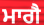
ਮਾਗੈ